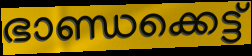
ഭാണ്ഡക്കെട്ട്